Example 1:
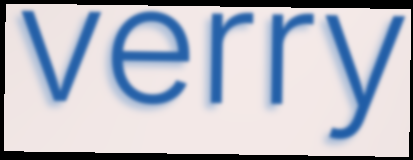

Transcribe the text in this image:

verry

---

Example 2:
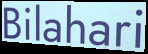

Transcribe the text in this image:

Bilahari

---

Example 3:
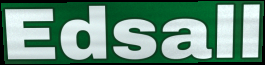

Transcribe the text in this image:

Edsall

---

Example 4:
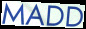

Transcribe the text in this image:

MADD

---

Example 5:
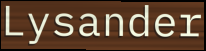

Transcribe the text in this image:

Lysander